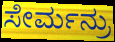
ಸೇರ್ಮನ್ರು